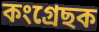
কংগ্ৰেছক